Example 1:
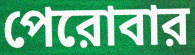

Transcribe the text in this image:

পেরোবার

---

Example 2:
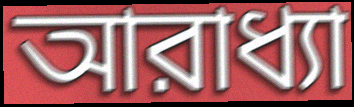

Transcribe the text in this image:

আরাধ্যা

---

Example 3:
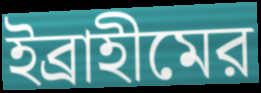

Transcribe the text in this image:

ইব্রাহীমের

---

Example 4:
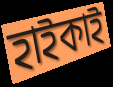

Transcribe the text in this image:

হাইকাই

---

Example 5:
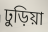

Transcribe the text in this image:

ঢুড়িয়া